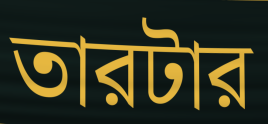
তারটার